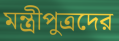
মন্ত্রীপুত্রদের